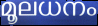
മൂലധനം